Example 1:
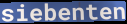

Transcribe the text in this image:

siebenten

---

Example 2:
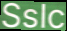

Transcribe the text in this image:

Sslc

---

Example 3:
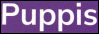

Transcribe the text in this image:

Puppis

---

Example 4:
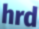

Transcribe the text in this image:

hrd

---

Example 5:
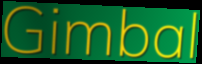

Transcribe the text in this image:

Gimbal